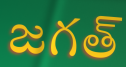
జగత్